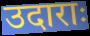
उदाराः